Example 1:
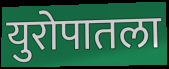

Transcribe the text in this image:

युरोपातला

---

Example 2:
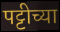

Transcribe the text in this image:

पट्टीच्या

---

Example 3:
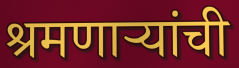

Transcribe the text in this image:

श्रमणाऱ्यांची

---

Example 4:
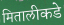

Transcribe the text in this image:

मितालीकडे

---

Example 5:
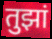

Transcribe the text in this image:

तुझां